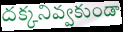
దక్కనివ్వకుండా